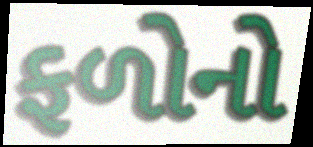
ફળોનો